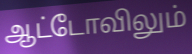
ஆட்டோவிலும்